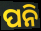
ପନି